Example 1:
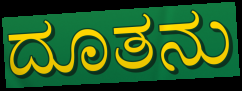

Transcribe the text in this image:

ದೂತನು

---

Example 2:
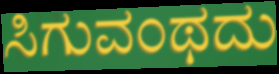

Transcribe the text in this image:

ಸಿಗುವಂಥದು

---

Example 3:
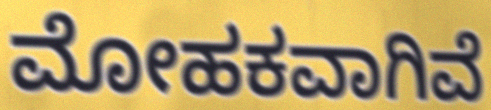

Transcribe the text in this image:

ಮೋಹಕವಾಗಿವೆ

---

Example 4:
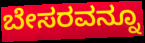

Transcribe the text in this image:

ಬೇಸರವನ್ನೂ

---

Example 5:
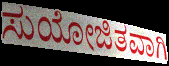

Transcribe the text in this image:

ಸುಯೋಜಿತವಾಗಿ